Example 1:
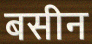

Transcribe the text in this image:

बसीन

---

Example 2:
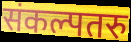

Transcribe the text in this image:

संकल्पतरु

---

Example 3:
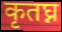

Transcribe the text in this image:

कृतघ्न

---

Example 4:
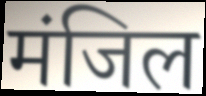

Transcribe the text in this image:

मंजिल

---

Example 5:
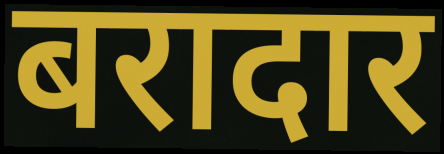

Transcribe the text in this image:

बरादार